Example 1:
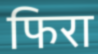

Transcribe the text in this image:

फिरा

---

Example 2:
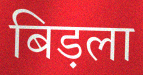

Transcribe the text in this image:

बिड़ला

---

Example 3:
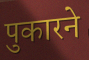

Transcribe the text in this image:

पुकारने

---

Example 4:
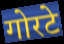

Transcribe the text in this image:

गोरटे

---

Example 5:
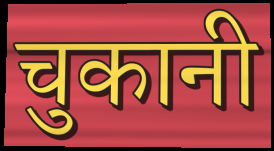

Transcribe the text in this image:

चुकानी